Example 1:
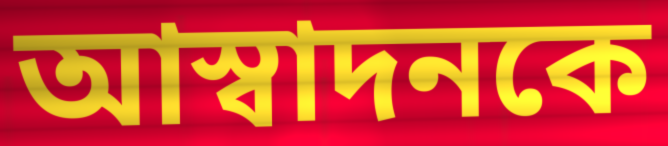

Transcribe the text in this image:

আস্বাদনকে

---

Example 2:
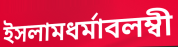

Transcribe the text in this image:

ইসলামধর্মাবলম্বী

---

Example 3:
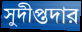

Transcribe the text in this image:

সুদীপ্তদার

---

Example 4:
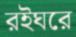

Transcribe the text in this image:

রইঘরে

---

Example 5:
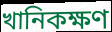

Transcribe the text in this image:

খানিকক্ষণ